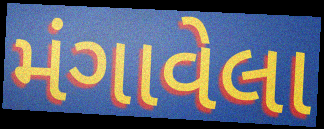
મંગાવેલા